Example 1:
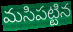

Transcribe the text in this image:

మసిపట్టిన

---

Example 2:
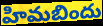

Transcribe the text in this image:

హిమబిందు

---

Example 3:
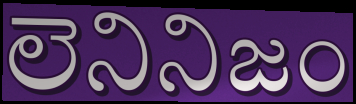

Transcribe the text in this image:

లెనినిజం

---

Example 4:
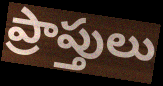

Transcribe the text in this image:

ప్రాప్తులు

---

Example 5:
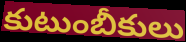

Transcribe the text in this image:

కుటుంబీకులు